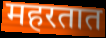
महरतात